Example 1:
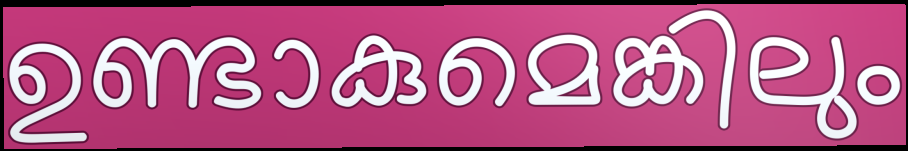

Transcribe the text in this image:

ഉണ്ടാകുമെങ്കിലും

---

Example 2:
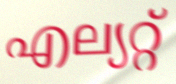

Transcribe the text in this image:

എല്യറ്റ്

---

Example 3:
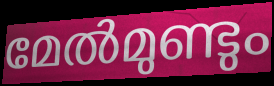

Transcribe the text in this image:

മേൽമുണ്ടും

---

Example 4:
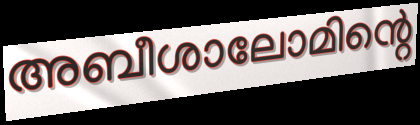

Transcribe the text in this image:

അബീശാലോമിന്റെ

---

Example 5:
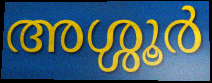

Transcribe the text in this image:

അശ്ശൂർ